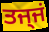
ਤਜ੍ਜਂ